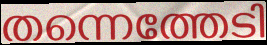
തന്നെത്തേടി